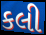
કલી